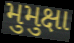
મુમુક્ષા